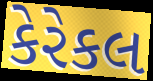
કેરેકલ